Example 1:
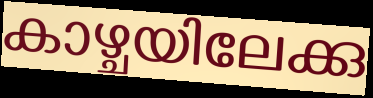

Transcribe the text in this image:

കാഴ്ചയിലേക്കു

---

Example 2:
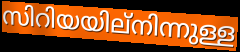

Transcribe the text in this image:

സിറിയയില്നിന്നുള്ള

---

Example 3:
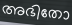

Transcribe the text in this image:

അഭിതോ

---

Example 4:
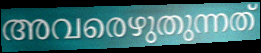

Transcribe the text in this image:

അവരെഴുതുന്നത്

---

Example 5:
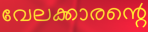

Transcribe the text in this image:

വേലക്കാരന്റെ